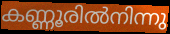
കണ്ണൂരിൽനിന്നു